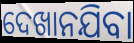
ଦେଖାନଯିବା